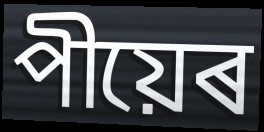
পীয়েৰ